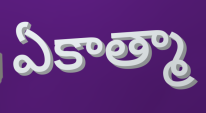
ఏకాత్మా